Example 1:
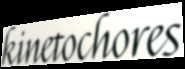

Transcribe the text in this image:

kinetochores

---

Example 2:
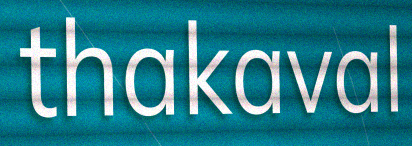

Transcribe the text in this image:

thakaval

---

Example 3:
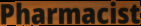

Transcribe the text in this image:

Pharmacist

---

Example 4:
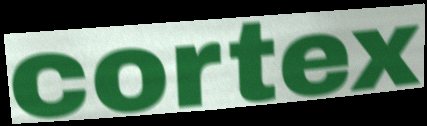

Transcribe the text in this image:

cortex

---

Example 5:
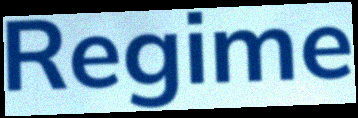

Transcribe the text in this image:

Regime